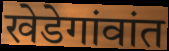
खेडेगांवांत